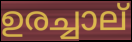
ഉരച്ചാല്